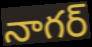
నాగర్